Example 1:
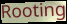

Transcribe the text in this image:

Rooting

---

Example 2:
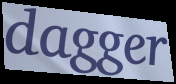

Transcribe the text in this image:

dagger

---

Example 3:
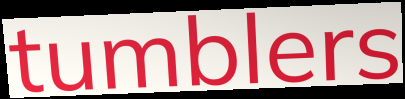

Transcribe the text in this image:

tumblers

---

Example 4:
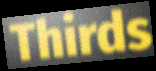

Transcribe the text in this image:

Thirds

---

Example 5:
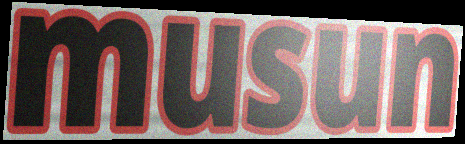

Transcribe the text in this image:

musun